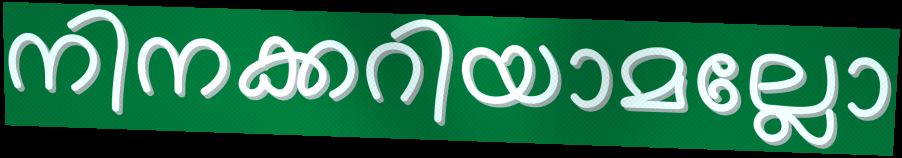
നിനക്കറിയാമല്ലോ